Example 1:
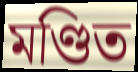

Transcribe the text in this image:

মণ্ডিত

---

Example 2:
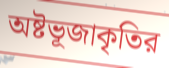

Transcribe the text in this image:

অষ্টভূজাকৃতির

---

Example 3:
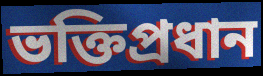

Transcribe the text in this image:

ভক্তিপ্রধান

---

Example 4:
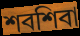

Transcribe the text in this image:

শবশিবা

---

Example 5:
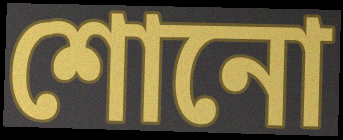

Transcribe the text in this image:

শোনো